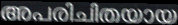
അപരിചിതയായ